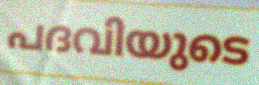
പദവിയുടെ